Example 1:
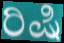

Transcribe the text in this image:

ರಿಷಿ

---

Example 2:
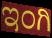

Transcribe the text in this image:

ಇಂಗಿ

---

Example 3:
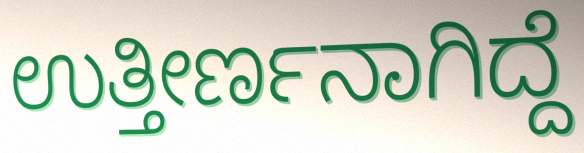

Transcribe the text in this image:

ಉತ್ತೀರ್ಣನಾಗಿದ್ದೆ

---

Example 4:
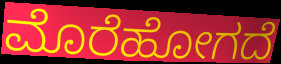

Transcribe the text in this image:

ಮೊರೆಹೋಗದೆ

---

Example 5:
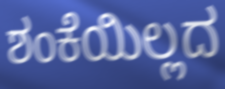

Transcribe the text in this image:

ಶಂಕೆಯಿಲ್ಲದ